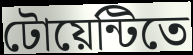
টোয়েন্টিতে